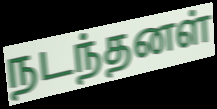
நடந்தனள்